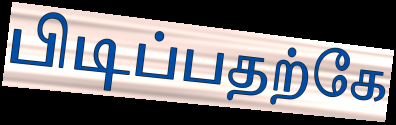
பிடிப்பதற்கே